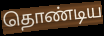
தொண்டிய